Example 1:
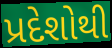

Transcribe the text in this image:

પ્રદેશોથી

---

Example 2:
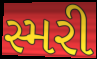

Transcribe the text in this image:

સ્મરી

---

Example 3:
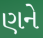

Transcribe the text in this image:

ણને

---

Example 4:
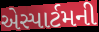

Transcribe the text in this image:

એસ્પાર્ટમની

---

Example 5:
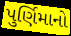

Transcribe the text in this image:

પુર્ણિમાનો